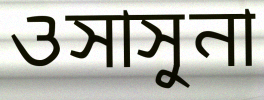
ওসাসুনা